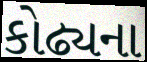
કોઢ્યના